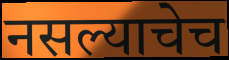
नसल्याचेच